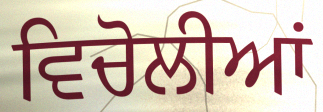
ਵਿਚੋਲੀਆਂ